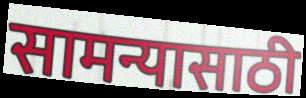
सामन्यासाठी